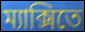
ম্যাক্সিতে